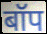
बॉप